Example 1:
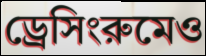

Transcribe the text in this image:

ড্রেসিংরুমেও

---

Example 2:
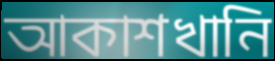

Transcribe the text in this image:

আকাশখানি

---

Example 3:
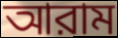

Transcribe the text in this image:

আরাম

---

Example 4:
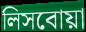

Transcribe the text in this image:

লিসবোয়া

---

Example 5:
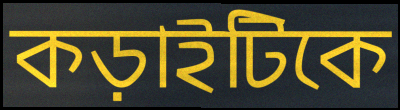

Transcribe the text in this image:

কড়াইটিকে